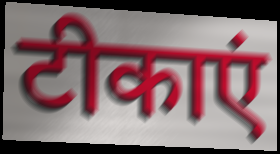
टीकाएं